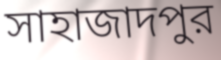
সাহাজাদপুর